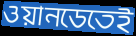
ওয়ানডেতেই